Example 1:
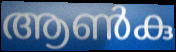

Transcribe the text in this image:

ആൺകു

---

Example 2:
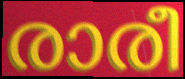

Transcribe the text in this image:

രാരീ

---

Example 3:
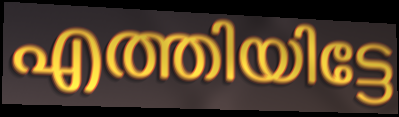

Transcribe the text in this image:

എത്തിയിട്ടേ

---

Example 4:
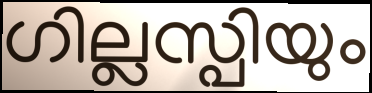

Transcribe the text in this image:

ഗില്ലസ്പിയും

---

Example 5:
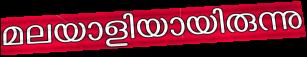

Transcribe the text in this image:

മലയാളിയായിരുന്നു